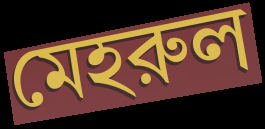
মেহরুল